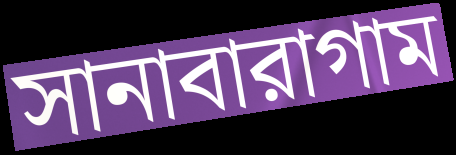
সানাবারাগাম